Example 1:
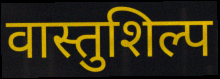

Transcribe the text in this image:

वास्तुशिल्प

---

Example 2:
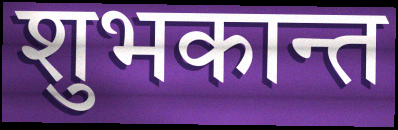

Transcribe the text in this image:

शुभकान्त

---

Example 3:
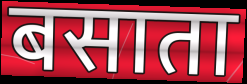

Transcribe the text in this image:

बसाता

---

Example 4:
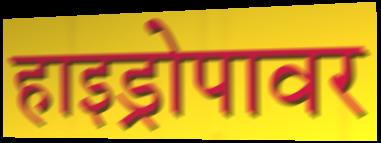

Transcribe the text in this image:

हाइड्रोपावर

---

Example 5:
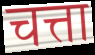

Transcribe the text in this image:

चत्ता